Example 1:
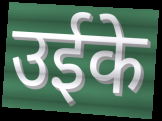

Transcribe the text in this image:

उईके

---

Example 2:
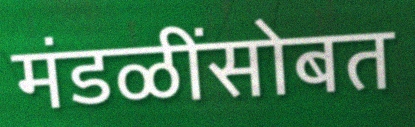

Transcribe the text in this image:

मंडळींसोबत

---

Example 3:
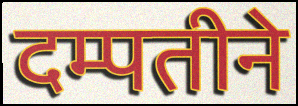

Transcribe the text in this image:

दम्पतीने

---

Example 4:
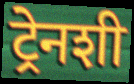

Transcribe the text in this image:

ट्रेनशी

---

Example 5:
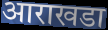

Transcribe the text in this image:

आराखडा